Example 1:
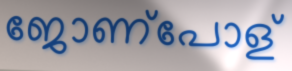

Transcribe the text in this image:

ജോണ്പോള്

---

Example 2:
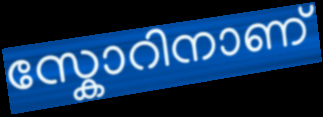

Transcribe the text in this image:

സ്കോറിനാണ്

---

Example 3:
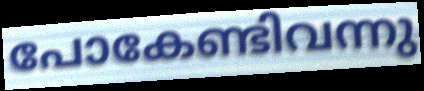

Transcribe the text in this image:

പോകേണ്ടിവന്നു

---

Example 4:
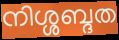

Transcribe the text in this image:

നിശ്ശബ്ദത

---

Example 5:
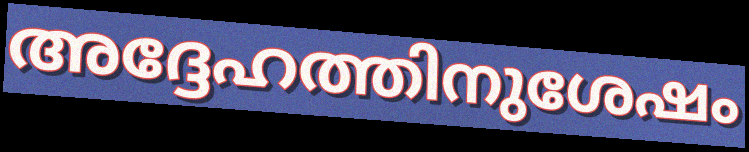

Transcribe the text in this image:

അദ്ദേഹത്തിനുശേഷം